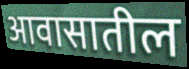
आवासातील